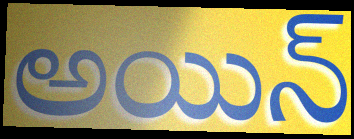
అయిన్